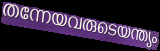
തന്നേയവരുടെയന്ത്യം